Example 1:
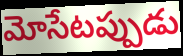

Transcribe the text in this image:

మోసేటప్పుడు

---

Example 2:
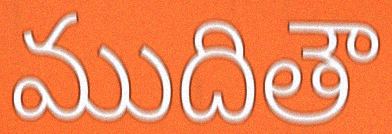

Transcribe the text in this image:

ముదితౌ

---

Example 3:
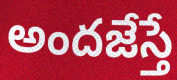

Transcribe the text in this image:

అందజేస్తే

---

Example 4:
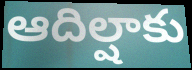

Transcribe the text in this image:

ఆదిల్షాకు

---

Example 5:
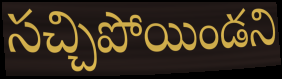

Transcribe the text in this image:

సచ్చిపోయిండని